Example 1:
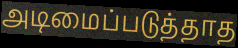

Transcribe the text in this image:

அடிமைப்படுத்தாத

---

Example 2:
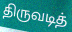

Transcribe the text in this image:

திருவடித்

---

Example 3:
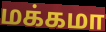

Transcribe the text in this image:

மக்கமா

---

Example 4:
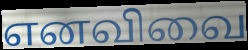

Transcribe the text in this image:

எனவிவை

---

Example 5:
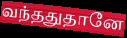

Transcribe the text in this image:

வந்ததுதானே